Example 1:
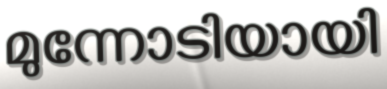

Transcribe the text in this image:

മുന്നോടിയായി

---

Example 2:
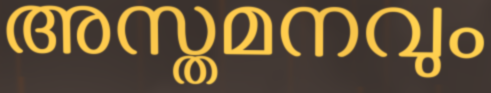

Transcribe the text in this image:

അസ്തമനവും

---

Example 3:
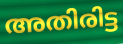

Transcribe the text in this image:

അതിരിട്ട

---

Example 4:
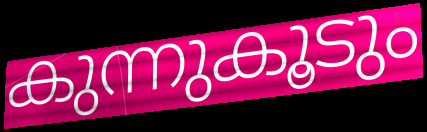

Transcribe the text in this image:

കുന്നുകൂടും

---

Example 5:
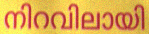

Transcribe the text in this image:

നിറവിലായി